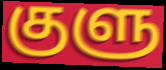
குளு